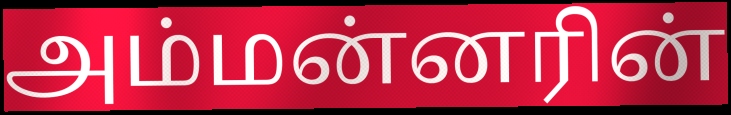
அம்மன்னரின்